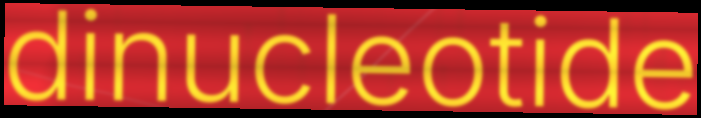
dinucleotide